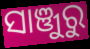
ସାଞ୍ଜୁରୁ